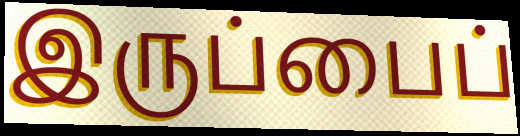
இருப்பைப்